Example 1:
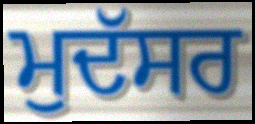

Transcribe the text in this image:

ਮੁਦੱਸਰ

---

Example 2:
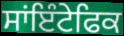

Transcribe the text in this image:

ਸਾਂਇੰਟੇਫਿਕ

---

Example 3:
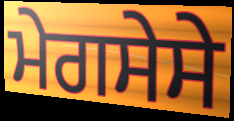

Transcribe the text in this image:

ਮੇਗਸੇਸੇ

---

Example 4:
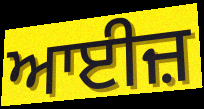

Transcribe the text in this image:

ਆਈਜ਼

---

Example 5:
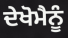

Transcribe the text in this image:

ਦੇਖੋਮੈਨੂੰ